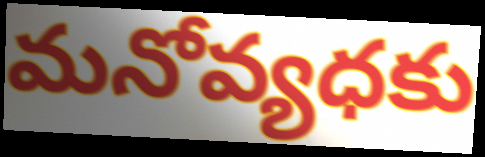
మనోవ్యధకు